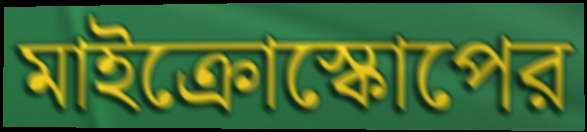
মাইক্রোস্কোপের